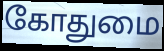
கோதுமை